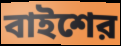
বাইশের